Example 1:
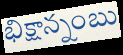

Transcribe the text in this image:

భిక్షాన్నంబు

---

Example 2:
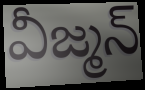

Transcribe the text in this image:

వీజ్మన్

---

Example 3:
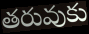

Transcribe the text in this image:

తరువుకు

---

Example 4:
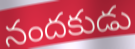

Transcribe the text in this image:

నందకుడు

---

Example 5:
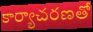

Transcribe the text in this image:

కార్యాచరణతో